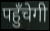
पहुँचेगी